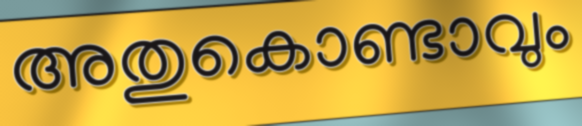
അതുകൊണ്ടാവും